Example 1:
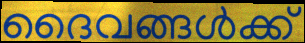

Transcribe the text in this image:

ദൈവങ്ങൾക്ക്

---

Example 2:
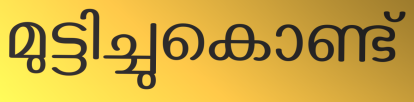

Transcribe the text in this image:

മുട്ടിച്ചുകൊണ്ട്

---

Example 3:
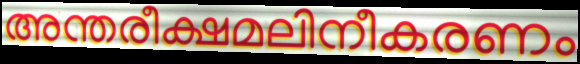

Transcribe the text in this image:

അന്തരീക്ഷമലിനീകരണം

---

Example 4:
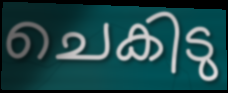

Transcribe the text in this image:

ചെകിടു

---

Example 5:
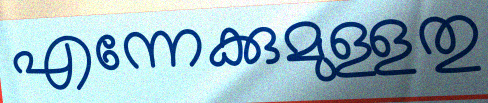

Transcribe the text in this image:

എന്നേക്കുമുള്ളതു